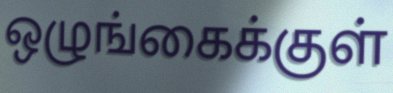
ஒழுங்கைக்குள்